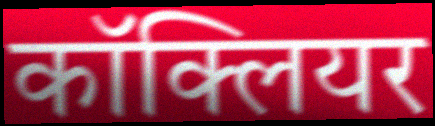
कॉक्लियर